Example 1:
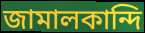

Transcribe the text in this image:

জামালকান্দি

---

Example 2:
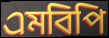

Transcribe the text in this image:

এমবিপি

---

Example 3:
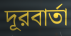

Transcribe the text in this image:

দূরবার্তা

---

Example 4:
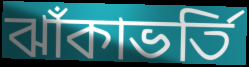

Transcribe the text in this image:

ঝাঁকাভর্তি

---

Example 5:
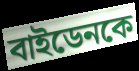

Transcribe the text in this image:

বাইডেনকে